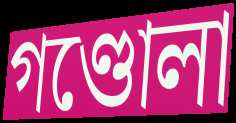
গণ্ডোলা